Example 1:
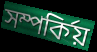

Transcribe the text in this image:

সম্পৰ্কিয়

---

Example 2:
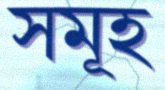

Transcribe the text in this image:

সমূহ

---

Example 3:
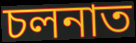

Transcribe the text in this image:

চলনাত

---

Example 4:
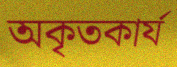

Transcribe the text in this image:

অকৃতকাৰ্য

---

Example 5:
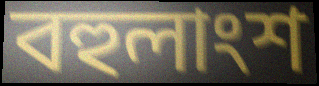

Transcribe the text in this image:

বহুলাংশ